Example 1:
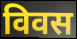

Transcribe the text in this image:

विवस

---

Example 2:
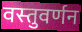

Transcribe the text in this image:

वस्तुवर्णन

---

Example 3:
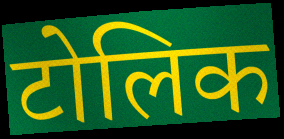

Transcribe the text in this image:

टोलिक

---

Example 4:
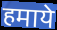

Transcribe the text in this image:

हमाये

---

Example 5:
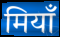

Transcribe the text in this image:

मियाँ